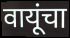
वायूंचा